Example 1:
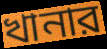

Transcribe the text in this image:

খানার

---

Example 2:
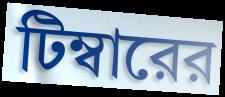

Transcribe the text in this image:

টিম্বারের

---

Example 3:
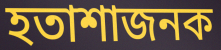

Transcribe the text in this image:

হতাশাজনক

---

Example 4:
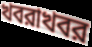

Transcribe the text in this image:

খবরাখবর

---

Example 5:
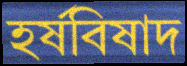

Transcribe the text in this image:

হর্ষবিষাদ